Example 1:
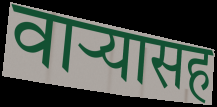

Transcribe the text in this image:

वार्‍यासह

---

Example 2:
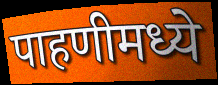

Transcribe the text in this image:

पाहणीमध्ये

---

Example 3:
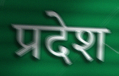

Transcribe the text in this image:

प्रदेश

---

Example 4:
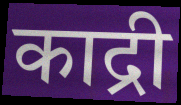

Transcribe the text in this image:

काद्री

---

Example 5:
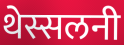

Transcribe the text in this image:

थेस्सलनी